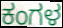
ಕಂಗಳ